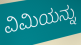
ವಿಮಿಯನ್ನು